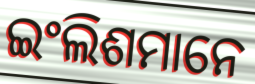
ଇଂଲିଶମାନେ